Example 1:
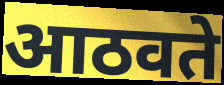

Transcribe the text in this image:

आठवते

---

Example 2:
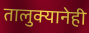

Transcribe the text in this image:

तालुक्यानेही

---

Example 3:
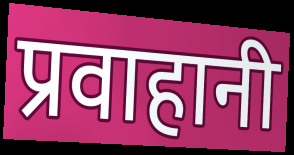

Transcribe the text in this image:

प्रवाहानी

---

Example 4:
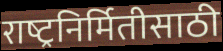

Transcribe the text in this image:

राष्ट्रनिर्मितीसाठी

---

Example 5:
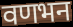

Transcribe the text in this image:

वणभन